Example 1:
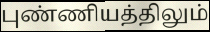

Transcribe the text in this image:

புண்ணியத்திலும்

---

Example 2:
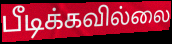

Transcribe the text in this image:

பீடிக்கவில்லை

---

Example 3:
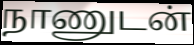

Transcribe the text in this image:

நாணுடன்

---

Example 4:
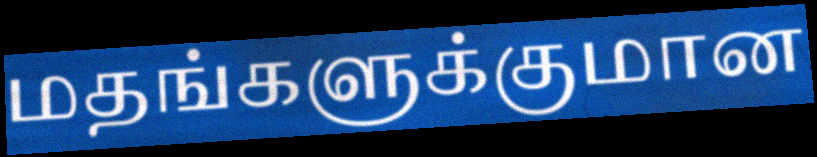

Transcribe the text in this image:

மதங்களுக்குமான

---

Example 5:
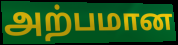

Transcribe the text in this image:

அற்பமான